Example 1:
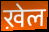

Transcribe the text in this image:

ख़ेल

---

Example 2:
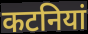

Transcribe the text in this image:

कटनियां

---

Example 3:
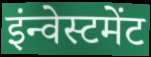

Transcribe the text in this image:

इंन्वेस्टमेंट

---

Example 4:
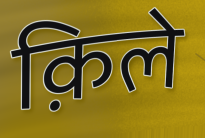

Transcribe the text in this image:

क़िले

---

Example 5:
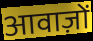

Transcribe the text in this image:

आवाज़ों